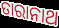
ତାରାନାଥ